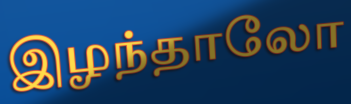
இழந்தாலோ